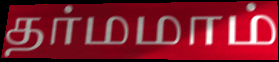
தர்மமாம்